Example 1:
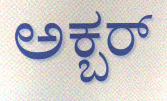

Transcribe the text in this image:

ಅಕ್ಬರ್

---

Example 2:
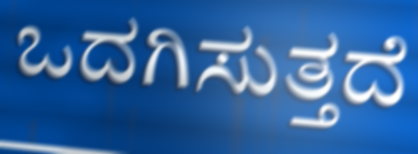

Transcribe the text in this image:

ಒದಗಿಸುತ್ತದೆ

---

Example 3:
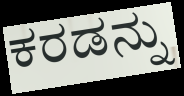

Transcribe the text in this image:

ಕರಡನ್ನು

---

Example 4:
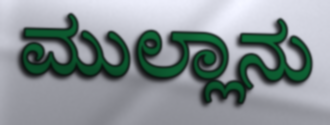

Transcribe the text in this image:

ಮುಲ್ಲಾನು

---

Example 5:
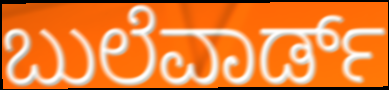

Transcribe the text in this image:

ಬುಲೆವಾರ್ಡ್